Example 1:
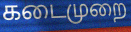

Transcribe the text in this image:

கடைமுறை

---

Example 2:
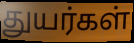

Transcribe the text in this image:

துயர்கள்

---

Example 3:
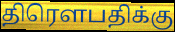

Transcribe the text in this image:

திரௌபதிக்கு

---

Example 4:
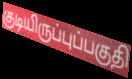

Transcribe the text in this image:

குடியிருப்புப்பகுதி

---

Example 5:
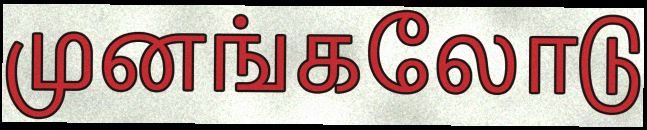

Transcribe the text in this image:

முனங்கலோடு